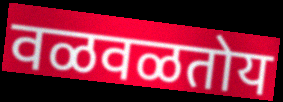
वळवळतोय